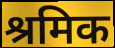
श्रमिक